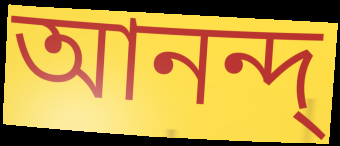
আনন্দ্